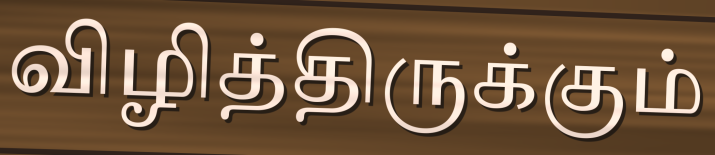
விழித்திருக்கும்